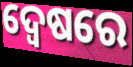
ଦ୍ୱେଷରେ